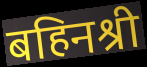
बहिनश्री